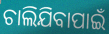
ଚାଲିଯିବାପାଇଁ